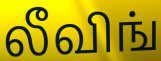
லீவிங்